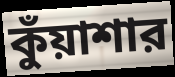
কুঁয়াশার